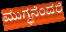
ಮುಗ್ಧನೆಂದರೆ